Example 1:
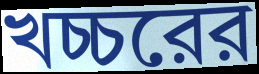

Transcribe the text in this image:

খচ্চরের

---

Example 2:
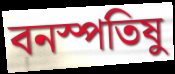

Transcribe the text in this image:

বনস্পতিষু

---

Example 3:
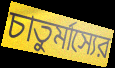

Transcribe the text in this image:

চাতুর্মাস্যের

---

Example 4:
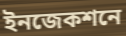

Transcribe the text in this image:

ইনজেকশনে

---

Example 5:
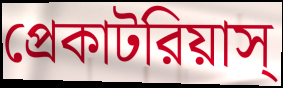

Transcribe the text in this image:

প্রেকাটরিয়াস্